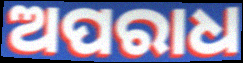
ଅପରାଧ